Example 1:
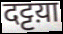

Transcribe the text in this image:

दट्टय़ा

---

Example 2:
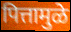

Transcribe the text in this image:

पित्तामुळे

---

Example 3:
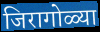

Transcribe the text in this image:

जिरागोळ्या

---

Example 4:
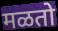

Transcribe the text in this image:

मळतो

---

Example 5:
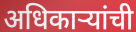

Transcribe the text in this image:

अधिकार्‍यांची